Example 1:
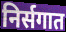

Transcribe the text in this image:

निर्सगात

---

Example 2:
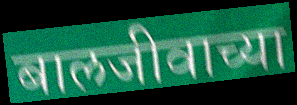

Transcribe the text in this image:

बालजीवाच्या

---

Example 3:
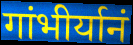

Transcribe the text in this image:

गांभीर्यानं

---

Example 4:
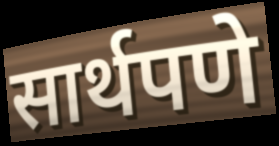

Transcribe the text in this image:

सार्थपणे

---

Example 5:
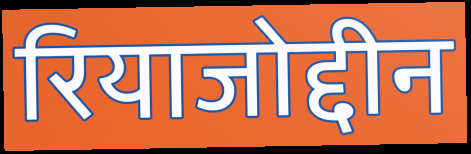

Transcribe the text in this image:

रियाजोद्दीन